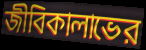
জীবিকালাভের